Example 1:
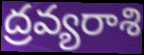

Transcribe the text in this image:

ద్రవ్యరాశి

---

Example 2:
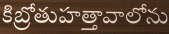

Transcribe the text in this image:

కిబ్రోతుహత్తావాలోను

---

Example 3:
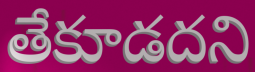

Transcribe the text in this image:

తేకూడదని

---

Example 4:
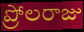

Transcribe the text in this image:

ప్రోలరాజు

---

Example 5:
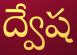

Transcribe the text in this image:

ద్వేష